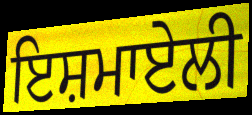
ਇਸ਼ਮਾਏਲੀ